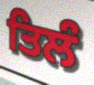
ਤਿਲੰ